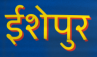
ईशेपुर